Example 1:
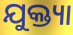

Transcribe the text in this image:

ଯୁକ୍ତ୍ୟା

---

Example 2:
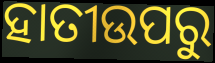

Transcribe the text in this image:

ହାତୀଉପରୁ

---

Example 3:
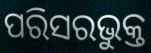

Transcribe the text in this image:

ପରିସରଭୁକ୍ତ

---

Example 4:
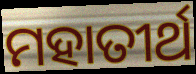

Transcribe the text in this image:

ମହାତୀର୍ଥ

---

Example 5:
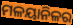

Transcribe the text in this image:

ମଳୟାନିଳର